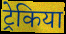
ट्रेकिया